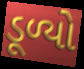
ડૂળ્યો